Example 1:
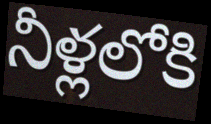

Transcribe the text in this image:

నీళ్లలోకి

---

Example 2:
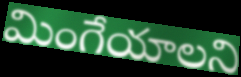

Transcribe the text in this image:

మింగేయాలని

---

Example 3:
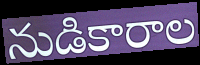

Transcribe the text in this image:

నుడికారాల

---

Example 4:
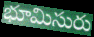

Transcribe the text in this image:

భూమిసురు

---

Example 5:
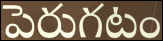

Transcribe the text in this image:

పెరుగటం